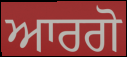
ਆਰਗੋ